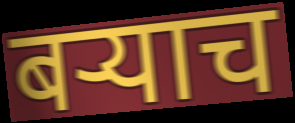
बऱ्याच